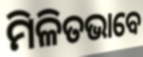
ମିଳିତଭାବେ